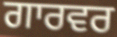
ਗਾਰਵਰ